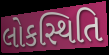
લોકસ્થિતિ